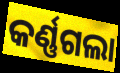
କର୍ଣ୍ଣଗଲା